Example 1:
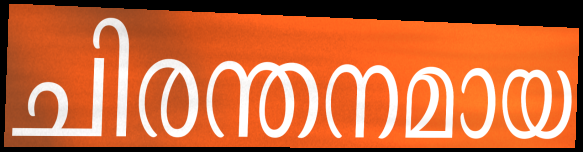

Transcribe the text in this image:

ചിരന്തനമായ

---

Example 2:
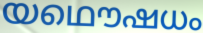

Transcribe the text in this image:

യഥൌഷധം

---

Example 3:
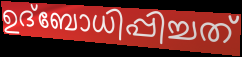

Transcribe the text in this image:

ഉദ്ബോധിപ്പിച്ചത്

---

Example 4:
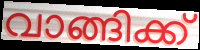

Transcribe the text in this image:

വാങ്ങിക്ക്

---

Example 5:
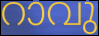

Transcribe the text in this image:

റാവു